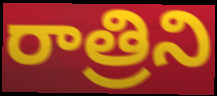
రాత్రిని